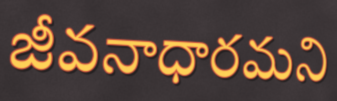
జీవనాధారమని